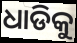
ଧାଡିକୁ